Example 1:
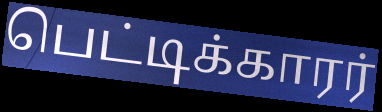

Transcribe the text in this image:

பெட்டிக்காரர்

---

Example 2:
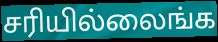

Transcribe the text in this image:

சரியில்லைங்க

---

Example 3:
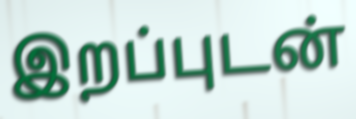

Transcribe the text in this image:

இறப்புடன்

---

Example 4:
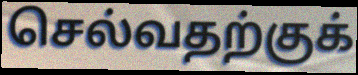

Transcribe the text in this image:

செல்வதற்குக்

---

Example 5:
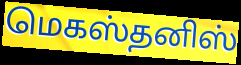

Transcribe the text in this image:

மெகஸ்தனிஸ்